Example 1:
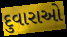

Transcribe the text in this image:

દુવારાઓ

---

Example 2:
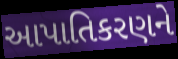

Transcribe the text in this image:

આપાતિકરણને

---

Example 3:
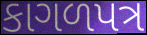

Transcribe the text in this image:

કાગળપત્ર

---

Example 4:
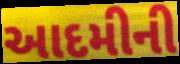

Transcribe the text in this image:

આદમીની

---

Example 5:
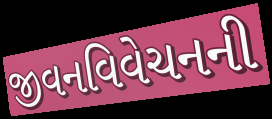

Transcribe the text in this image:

જીવનવિવેચનની